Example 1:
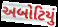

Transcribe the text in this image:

અબોટિયું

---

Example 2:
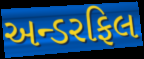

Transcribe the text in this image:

અન્ડરફિલ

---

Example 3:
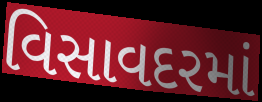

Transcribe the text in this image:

વિસાવદરમાં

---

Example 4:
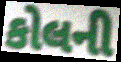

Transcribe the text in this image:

કોલની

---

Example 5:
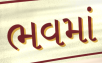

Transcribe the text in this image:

ભવમાં